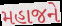
મહાજને